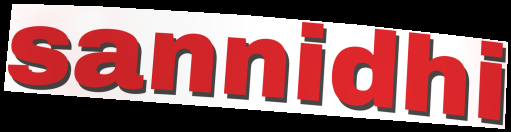
sannidhi